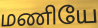
மணியே